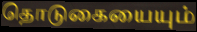
தொடுகையையும்